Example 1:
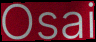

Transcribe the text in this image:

Osai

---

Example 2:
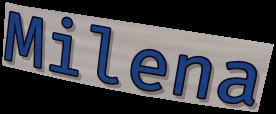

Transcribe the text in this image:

Milena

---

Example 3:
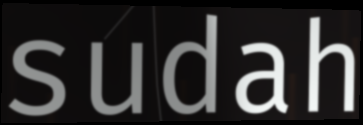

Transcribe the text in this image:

sudah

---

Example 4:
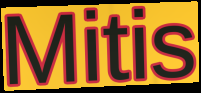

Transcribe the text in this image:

Mitis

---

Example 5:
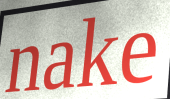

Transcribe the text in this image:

nake